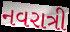
નવરાત્રી